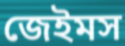
জেইমস